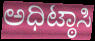
ಅಧಿಟ್ಠಾಸಿ